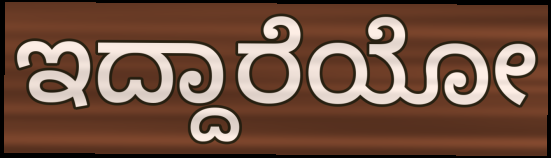
ಇದ್ದಾರೆಯೋ